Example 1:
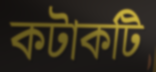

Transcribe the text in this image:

কটাকটি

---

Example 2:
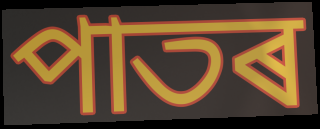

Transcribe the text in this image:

পাতৰ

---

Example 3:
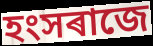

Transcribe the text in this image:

হংসৰাজে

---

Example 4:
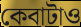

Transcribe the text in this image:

কেবাটাও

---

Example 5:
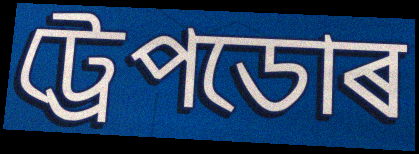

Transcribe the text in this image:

ট্ৰেপডোৰ